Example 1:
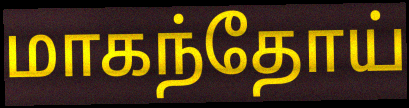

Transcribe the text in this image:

மாகந்தோய்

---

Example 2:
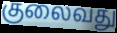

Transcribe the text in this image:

குலைவது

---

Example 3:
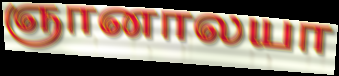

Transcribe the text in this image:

ஞானாலயா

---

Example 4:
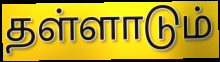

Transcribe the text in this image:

தள்ளாடும்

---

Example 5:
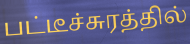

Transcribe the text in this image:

பட்டீச்சுரத்தில்